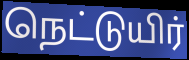
நெட்டுயிர்